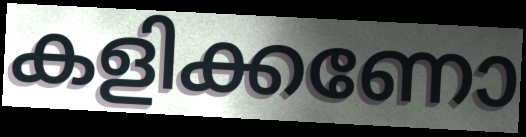
കളിക്കണോ